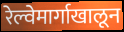
रेल्वेमार्गाखालून